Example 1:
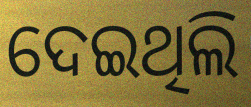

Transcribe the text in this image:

ଦେଇଥିଲି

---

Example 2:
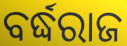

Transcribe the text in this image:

ବର୍ଦ୍ଧରାଜ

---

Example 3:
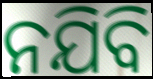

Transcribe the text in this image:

ନଯିବି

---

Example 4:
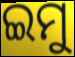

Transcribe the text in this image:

ଇମୁ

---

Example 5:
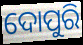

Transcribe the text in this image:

ଦୋପୁରି